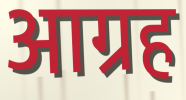
आग्रह